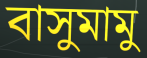
বাসুমামু